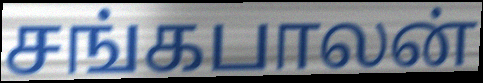
சங்கபாலன்